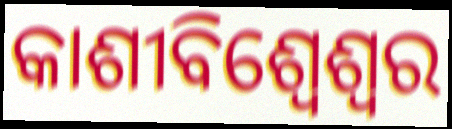
କାଶୀବିଶ୍ୱେଶ୍ୱର